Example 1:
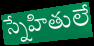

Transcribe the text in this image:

స్నేహితులే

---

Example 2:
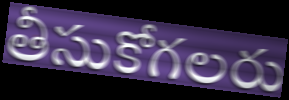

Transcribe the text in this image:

తీసుకోగలరు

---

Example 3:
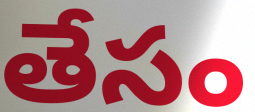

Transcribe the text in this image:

తేసం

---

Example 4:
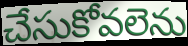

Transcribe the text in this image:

చేసుకోవలెను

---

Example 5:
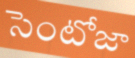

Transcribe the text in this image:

సెంటోజా